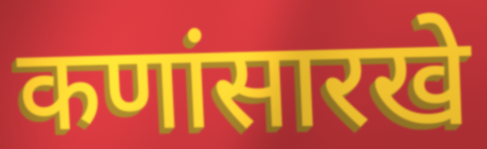
कणांसारखे